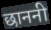
छाननी